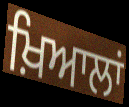
ਖ਼ਿਆਲਾਂ